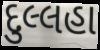
દુલ્લહા